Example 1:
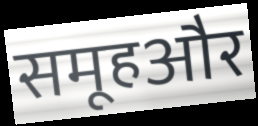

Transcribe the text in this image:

समूहऔर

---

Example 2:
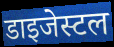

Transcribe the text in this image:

डाइजेस्टल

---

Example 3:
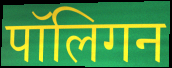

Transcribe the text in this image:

पॉलिगन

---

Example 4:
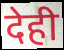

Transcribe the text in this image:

देही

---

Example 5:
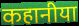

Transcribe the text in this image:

कहानीया